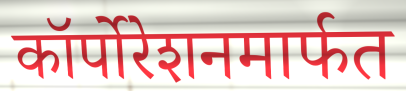
कॉर्पोरेशनमार्फत